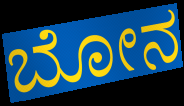
ಬೋನ